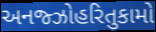
અનજ્ઝોહરિતુકામો